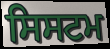
ਸਿਸਟਮ